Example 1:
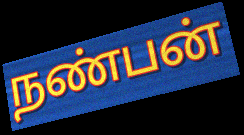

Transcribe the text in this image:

நண்பன்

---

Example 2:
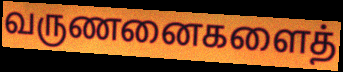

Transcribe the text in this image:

வருணனைகளைத்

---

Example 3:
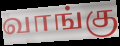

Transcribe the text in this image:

வாங்கு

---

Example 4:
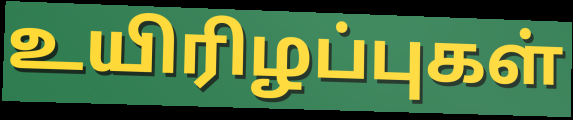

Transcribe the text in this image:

உயிரிழப்புகள்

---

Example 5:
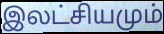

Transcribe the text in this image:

இலட்சியமும்